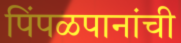
पिंपळपानांची